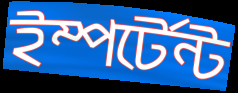
ইম্পর্টেন্ট